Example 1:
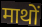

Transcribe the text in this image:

माथों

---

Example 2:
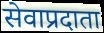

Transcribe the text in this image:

सेवाप्रदाता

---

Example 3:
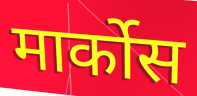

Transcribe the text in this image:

मार्कोस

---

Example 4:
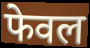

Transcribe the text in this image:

फेवल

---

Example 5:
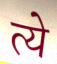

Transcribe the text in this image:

त्ये